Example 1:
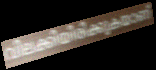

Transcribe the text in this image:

വിലക്കിയിരിക്കുകയാണ്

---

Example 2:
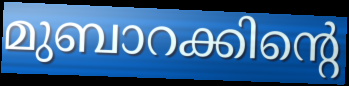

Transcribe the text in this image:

മുബാറക്കിന്റെ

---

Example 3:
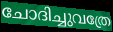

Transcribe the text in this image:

ചോദിച്ചുവത്രേ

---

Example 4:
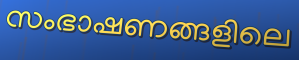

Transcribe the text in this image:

സംഭാഷണങ്ങളിലെ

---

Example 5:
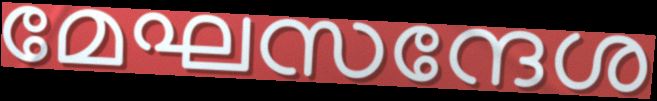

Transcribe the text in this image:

മേഘസന്ദേശ